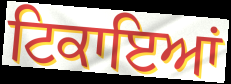
ਟਿਕਾਇਆਂ